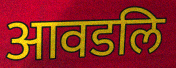
आवडलि